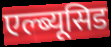
एल्ब्यूसिड